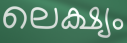
ലെക്ഷ്യം